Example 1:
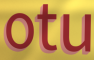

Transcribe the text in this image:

otu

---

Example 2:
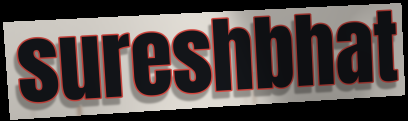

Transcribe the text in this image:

sureshbhat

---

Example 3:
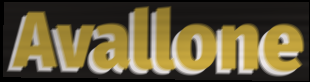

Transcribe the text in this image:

Avallone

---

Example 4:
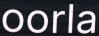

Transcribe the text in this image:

oorla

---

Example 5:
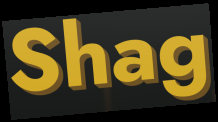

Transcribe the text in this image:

Shag